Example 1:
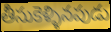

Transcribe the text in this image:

తీసుకెళ్ళినపుడు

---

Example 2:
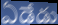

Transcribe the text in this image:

ఏడేడు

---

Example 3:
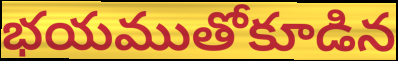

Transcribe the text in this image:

భయముతోకూడిన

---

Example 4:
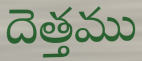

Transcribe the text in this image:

దెత్తము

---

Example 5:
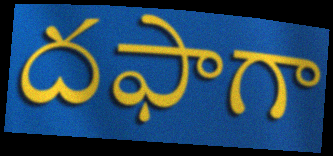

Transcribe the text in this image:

దఫాగా